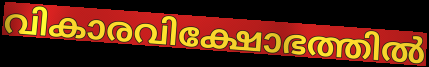
വികാരവിക്ഷോഭത്തിൽ